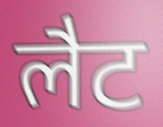
लैट